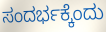
ಸಂದರ್ಭಕ್ಕೆಂದು